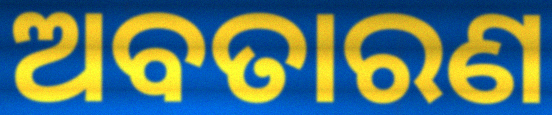
ଅବତାରଣ